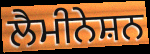
ਲੈਮੀਨੇਸ਼ਨ